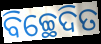
ବିଚ୍ଛେଦିତ